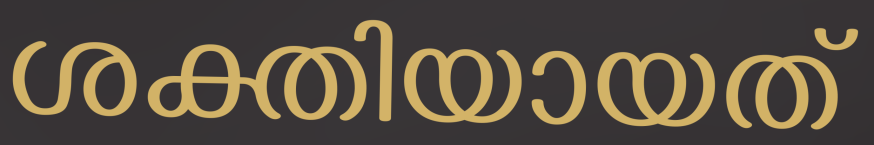
ശക്തിയായത്